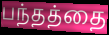
பந்தத்தை